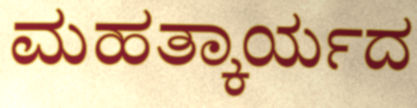
ಮಹತ್ಕಾರ್ಯದ